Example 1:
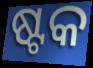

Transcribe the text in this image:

ଷ୍ଟକ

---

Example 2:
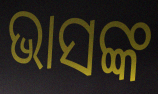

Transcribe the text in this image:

ଭାସଙ୍କ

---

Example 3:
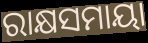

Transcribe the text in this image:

ରାକ୍ଷସମାୟା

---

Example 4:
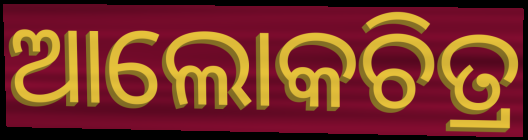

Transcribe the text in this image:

ଆଲୋକଚିତ୍ର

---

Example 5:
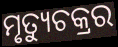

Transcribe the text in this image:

ମୃତ୍ୟୁଚକ୍ରର